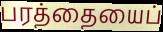
பரத்தையைப்